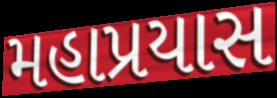
મહાપ્રયાસ